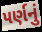
પર્ણનું